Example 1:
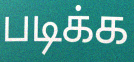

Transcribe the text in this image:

படிக்க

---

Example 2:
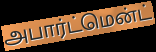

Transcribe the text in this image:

அபார்ட்மென்ட்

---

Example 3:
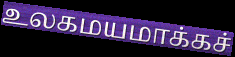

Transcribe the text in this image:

உலகமயமாக்கச்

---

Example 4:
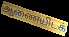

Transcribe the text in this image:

ஆணையிடக்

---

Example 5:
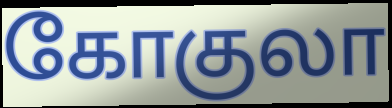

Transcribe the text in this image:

கோகுலா